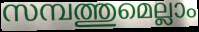
സമ്പത്തുമെല്ലാം